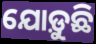
ଯୋଡ଼ୁଛି